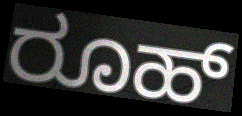
ರೂಹ್